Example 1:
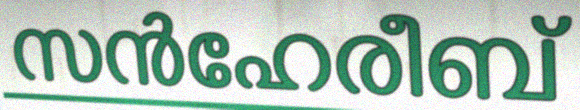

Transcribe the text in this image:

സൻഹേരീബ്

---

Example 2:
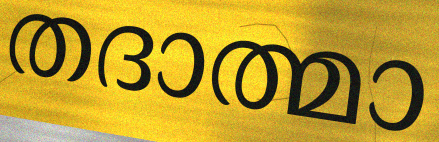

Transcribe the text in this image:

തദാത്മാ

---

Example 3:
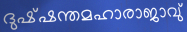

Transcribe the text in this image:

ദുഷ്ഷന്തമഹാരാജാവു്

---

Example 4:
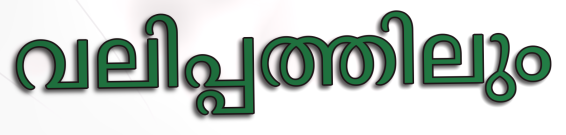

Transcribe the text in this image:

വലിപ്പത്തിലും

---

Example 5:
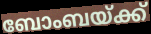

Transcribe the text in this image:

ബോംബയ്ക്ക്